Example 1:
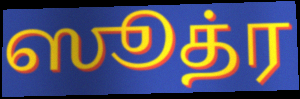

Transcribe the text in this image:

ஸூத்ர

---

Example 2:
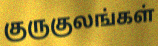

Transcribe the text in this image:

குருகுலங்கள்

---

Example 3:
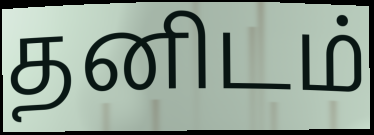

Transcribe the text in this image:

தனிடம்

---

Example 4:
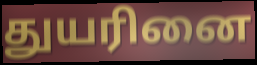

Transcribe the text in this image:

துயரினை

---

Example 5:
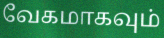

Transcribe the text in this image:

வேகமாகவும்